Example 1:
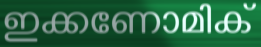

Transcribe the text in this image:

ഇക്കണോമിക്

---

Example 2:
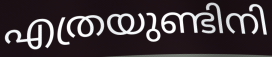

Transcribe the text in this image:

എത്രയുണ്ടിനി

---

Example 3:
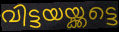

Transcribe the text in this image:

വിട്ടയയ്ക്കട്ടെ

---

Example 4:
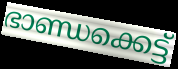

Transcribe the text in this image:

ഭാണ്ഡക്കെട്ട്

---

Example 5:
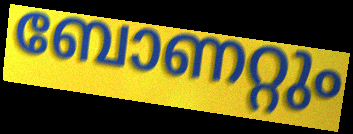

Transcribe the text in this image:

ബോണറ്റും